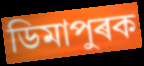
ডিমাপুৰক